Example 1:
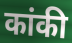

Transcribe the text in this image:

कांकी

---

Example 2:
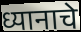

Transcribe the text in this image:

ध्यानाचे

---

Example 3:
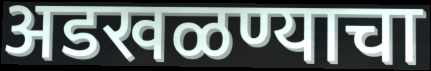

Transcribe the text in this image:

अडखळण्याचा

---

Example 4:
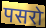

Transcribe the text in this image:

पसरो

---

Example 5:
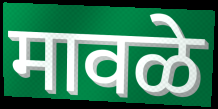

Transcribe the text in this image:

मावळे